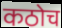
कठोच